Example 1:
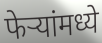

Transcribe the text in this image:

फेऱ्यांमध्ये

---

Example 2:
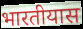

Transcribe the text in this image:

भारतीयास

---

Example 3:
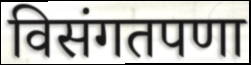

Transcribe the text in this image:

विसंगतपणा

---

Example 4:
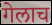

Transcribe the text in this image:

गेलाच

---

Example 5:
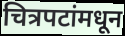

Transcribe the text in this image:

चित्रपटांमधून